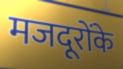
मजदूरोंके